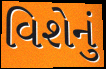
વિશેનું